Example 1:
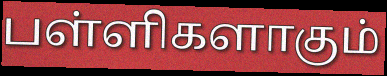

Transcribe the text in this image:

பள்ளிகளாகும்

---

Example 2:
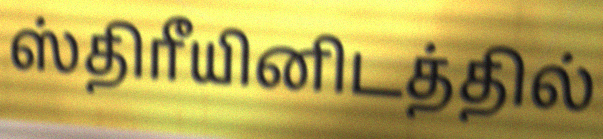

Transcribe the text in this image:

ஸ்திரீயினிடத்தில்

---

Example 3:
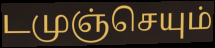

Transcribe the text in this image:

டமுஞ்செயும்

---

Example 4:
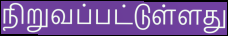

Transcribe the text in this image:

நிறுவப்பட்டுள்ளது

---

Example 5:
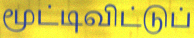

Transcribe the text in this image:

மூட்டிவிட்டுப்